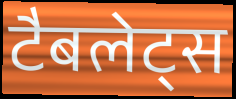
टैबलेट्स